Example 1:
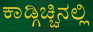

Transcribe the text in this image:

ಕಾಡ್ಗಿಚ್ಚಿನಲ್ಲಿ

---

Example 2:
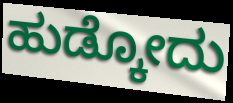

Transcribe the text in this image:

ಹುಡ್ಕೋದು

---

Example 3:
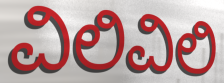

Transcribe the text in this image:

ವಿಲಿವಿಲಿ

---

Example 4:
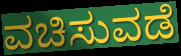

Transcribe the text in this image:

ವಚಿಸುವಡೆ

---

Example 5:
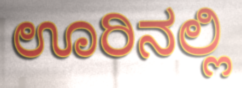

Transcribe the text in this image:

ಊರಿನಲ್ಲಿ